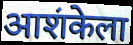
आशंकेला